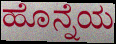
ಹೊನ್ನೆಯ